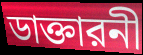
ডাক্তারনী